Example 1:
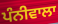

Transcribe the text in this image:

ਪੰਨੀਵਾਲਾ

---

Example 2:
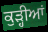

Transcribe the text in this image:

ਕੁੜ੍ਹੀਆਂ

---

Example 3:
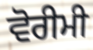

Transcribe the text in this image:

ਵੋਰੀਮੀ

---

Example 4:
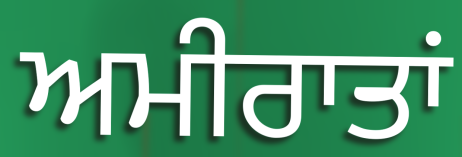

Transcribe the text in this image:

ਅਮੀਰਾਤਾਂ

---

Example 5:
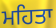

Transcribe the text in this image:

ਮਹਿਤਾ